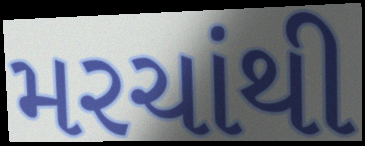
મરચાંથી